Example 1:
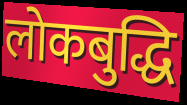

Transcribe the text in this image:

लोकबुद्धि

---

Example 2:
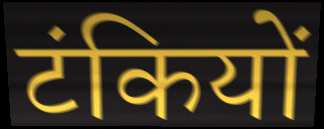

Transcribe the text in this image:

टंकियों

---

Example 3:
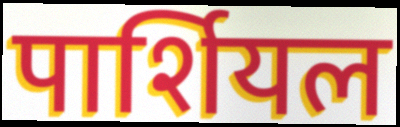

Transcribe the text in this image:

पार्शियल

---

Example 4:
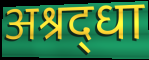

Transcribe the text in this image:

अश्रद्धा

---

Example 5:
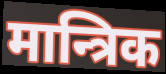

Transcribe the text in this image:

मान्त्रिक